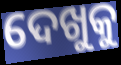
ଦେଖୁକୁ